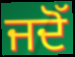
ਜਦੋੱ